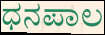
ಧನಪಾಲ